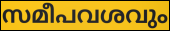
സമീപവശവും